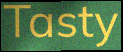
Tasty